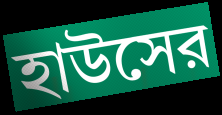
হাউসের